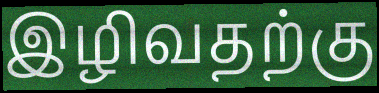
இழிவதற்கு